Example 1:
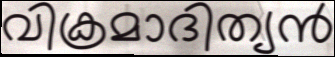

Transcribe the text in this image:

വിക്രമാദിത്യൻ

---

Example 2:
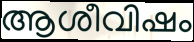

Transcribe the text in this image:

ആശീവിഷം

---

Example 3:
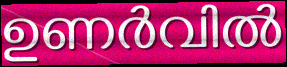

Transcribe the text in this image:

ഉണർവിൽ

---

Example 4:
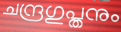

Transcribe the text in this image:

ചന്ദ്രഗുപ്തനും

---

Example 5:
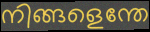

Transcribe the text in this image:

നിങ്ങളെന്തേ